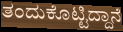
ತಂದುಕೊಟ್ಟಿದ್ದಾನೆ